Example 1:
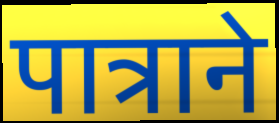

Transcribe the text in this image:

पात्राने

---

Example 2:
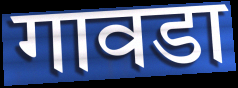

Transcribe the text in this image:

गावडा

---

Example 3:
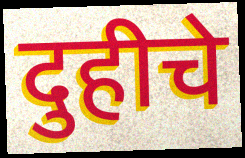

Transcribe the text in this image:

दुहीचे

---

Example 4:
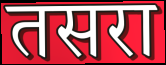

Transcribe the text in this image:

तसरा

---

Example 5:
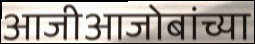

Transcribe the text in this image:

आजीआजोबांच्या